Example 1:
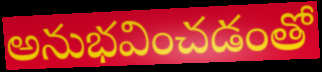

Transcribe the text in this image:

అనుభవించడంతో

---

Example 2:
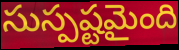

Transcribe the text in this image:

సుస్పష్టమైంది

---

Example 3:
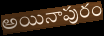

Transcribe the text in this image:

అయినాపురం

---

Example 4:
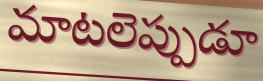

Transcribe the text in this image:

మాటలెప్పుడూ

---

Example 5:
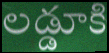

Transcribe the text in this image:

లడ్డూకి